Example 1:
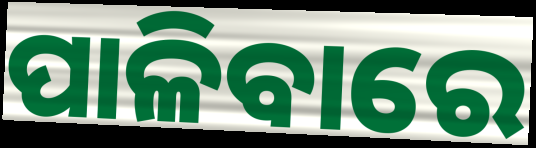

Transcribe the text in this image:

ପାଳିବାରେ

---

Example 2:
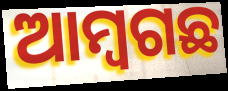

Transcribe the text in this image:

ଆମ୍ୱଗଛ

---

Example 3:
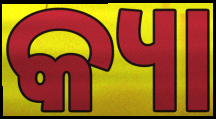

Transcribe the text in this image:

କ୍ୟା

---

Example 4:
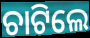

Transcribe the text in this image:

ଚାଟିଲେ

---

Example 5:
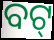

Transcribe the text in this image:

ବଟ୍